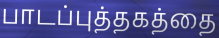
பாடப்புத்தகத்தை